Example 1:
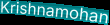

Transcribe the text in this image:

Krishnamohan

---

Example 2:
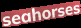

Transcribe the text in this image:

seahorses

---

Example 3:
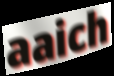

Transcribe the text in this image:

aaich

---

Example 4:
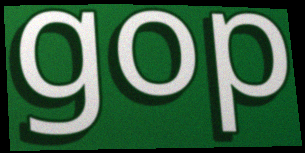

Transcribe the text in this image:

gop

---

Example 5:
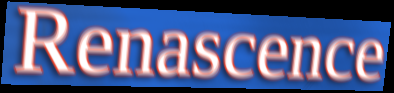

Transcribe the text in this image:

Renascence